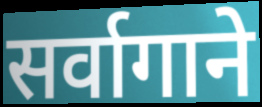
सर्वागाने